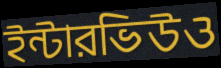
ইন্টারভিউও